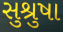
સુશ્રુષા